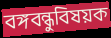
বঙ্গবন্ধুবিষয়ক